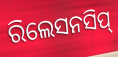
ରିଲେସନସିପ୍